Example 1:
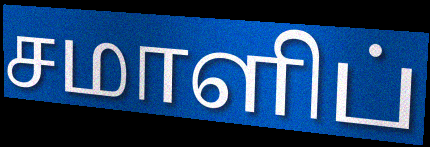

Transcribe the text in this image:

சமாளிப்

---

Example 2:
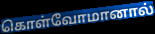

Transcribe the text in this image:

கொள்வோமானால்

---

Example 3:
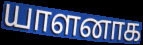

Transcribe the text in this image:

யாளனாக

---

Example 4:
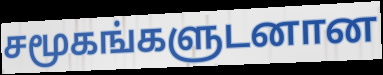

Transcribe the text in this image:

சமூகங்களுடனான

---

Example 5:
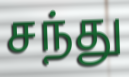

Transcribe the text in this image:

சந்து